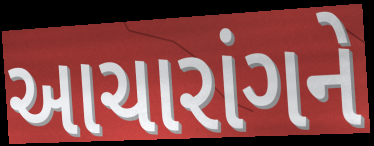
આચારાંગને